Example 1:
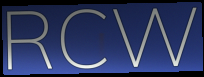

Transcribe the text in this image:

RCW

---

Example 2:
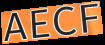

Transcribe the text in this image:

AECF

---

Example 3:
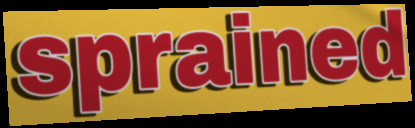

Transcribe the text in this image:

sprained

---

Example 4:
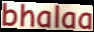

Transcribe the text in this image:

bhalaa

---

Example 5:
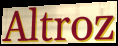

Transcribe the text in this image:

Altroz